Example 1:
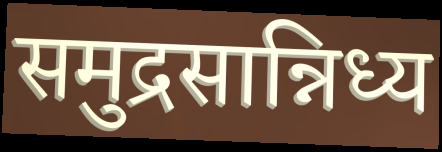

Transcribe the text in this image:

समुद्रसान्निध्य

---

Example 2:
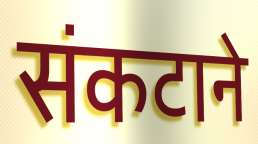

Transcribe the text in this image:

संकटाने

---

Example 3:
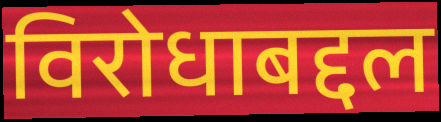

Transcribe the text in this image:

विरोधाबद्दल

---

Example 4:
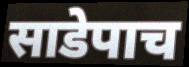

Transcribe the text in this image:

साडेपाच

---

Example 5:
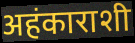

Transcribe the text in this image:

अहंकाराशी